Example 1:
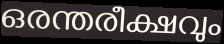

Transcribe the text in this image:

ഒരന്തരീക്ഷവും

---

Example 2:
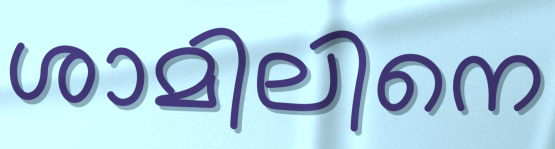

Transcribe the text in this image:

ശാമിലിനെ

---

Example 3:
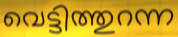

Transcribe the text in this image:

വെട്ടിത്തുറന്ന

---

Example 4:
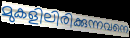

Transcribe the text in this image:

മുകളിലിരിക്കുന്നവനെ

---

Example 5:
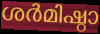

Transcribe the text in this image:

ശർമിഷ്ഠാ